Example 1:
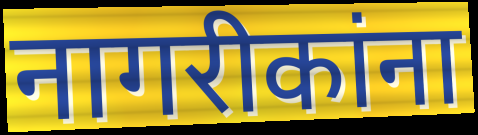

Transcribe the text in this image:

नागरीकांना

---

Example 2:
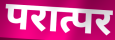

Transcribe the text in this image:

परात्पर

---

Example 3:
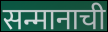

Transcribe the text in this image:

सन्मानाची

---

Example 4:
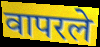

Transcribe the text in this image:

वापरले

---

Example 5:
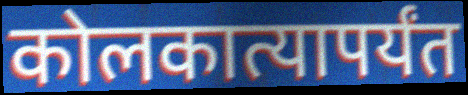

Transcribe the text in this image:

कोलकात्यापर्यंत